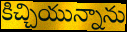
కిచ్చియున్నాను